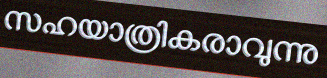
സഹയാത്രികരാവുന്നു